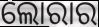
ଲୋରାର